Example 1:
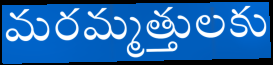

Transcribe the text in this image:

మరమ్మత్తులకు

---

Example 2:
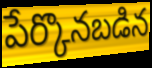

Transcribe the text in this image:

పేర్కొనబడిన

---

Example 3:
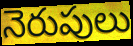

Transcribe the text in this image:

నెరుపులు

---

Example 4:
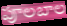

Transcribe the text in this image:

పూలబాల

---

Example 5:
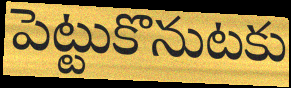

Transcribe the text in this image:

పెట్టుకొనుటకు